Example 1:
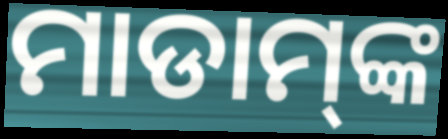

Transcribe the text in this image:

ମାଡାମ୍‌ଙ୍କ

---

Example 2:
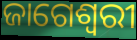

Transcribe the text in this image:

ଜାଗେଶ୍ୱରୀ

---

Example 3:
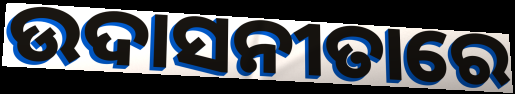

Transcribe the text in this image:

ଉଦାସନୀତାରେ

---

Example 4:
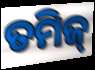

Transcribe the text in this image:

ତମିଜ୍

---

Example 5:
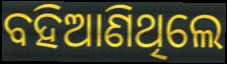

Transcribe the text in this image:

ବହିଆଣିଥିଲେ